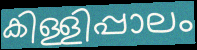
കിള്ളിപ്പാലം